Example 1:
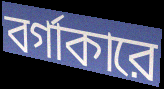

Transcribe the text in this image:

বর্গাকারে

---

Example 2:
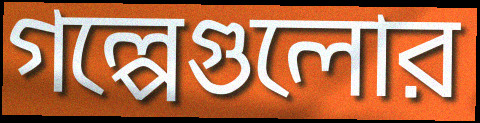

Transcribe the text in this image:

গল্পেগুলোর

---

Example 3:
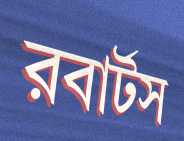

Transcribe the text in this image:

রবার্টস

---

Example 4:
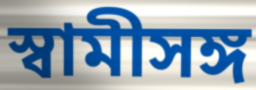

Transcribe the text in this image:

স্বামীসঙ্গ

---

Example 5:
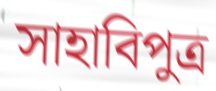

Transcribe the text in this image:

সাহাবিপুত্র